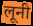
लूनी